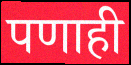
पणाही